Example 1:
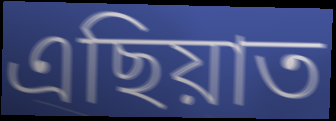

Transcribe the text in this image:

এছিয়াত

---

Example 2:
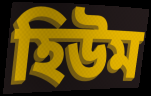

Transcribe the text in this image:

হিউম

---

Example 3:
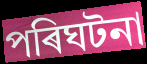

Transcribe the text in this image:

পৰিঘটনা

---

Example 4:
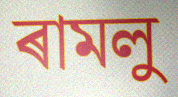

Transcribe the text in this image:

ৰামলু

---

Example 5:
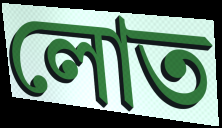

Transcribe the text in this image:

লোত